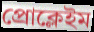
প্রোক্লেইম